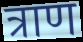
त्राण